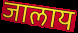
जालाय